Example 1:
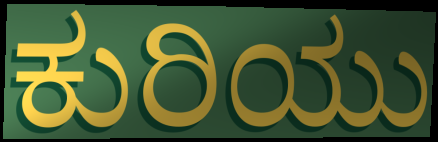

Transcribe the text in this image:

ಕುರಿಯು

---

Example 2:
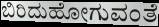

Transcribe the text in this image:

ಬಿರಿದುಹೋಗುವಂತೆ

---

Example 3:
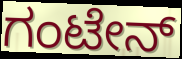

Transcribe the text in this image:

ಗಂಟೇನ್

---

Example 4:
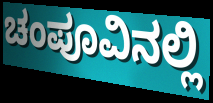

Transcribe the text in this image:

ಚಂಪೂವಿನಲ್ಲಿ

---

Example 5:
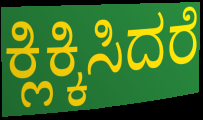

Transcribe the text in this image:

ಕ್ಲಿಕ್ಕಿಸಿದರೆ